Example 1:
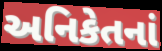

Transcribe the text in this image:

અનિકેતનાં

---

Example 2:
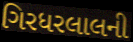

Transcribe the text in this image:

ગિરધરલાલની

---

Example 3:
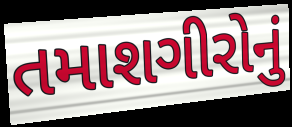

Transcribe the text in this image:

તમાશગીરોનું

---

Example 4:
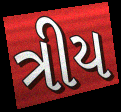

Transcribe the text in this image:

ત્રીય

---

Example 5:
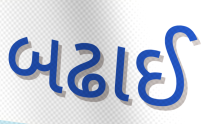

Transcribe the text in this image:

બઢાઈ